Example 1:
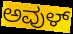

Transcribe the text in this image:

ಅವುಳ್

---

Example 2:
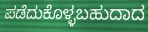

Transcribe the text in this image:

ಪಡೆದುಕೊಳ್ಳಬಹುದಾದ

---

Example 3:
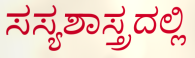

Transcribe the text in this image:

ಸಸ್ಯಶಾಸ್ತ್ರದಲ್ಲಿ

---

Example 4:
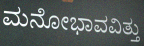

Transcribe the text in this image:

ಮನೋಭಾವವಿತ್ತು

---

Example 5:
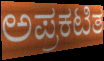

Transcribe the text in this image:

ಅಪ್ರಕಟಿತ